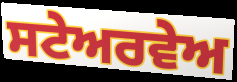
ਸਟੇਅਰਵੇਅ